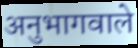
अनुभागवाले